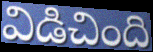
విడిచింది